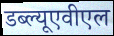
डब्ल्यूएवीएल